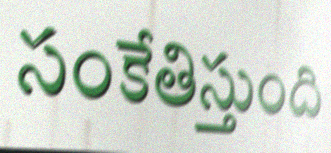
సంకేతిస్తుంది